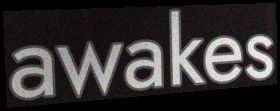
awakes